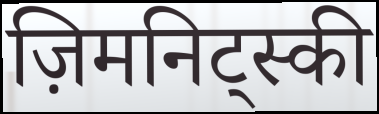
ज़िमनिट्स्की